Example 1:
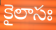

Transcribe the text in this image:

కైలాసః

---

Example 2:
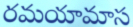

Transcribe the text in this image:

రమయామాస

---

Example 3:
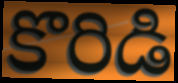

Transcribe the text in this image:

కొరిడి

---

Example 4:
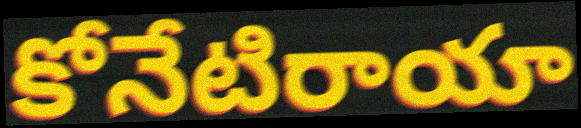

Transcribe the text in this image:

కోనేటిరాయా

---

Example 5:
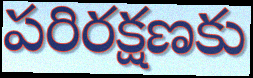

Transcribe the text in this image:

పరిరక్షణకు